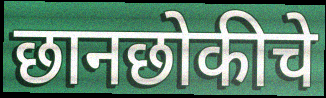
छानछोकीचे